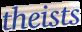
theists